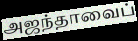
அஜந்தாவைப்